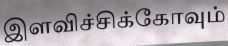
இளவிச்சிக்கோவும்